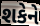
શકેને